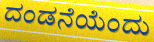
ದಂಡನೆಯೆಂದು